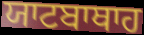
ਯਾਟਬਾਥਾਹ